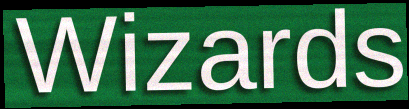
Wizards